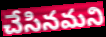
చేసినమని